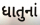
ધાતુનાં